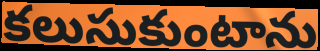
కలుసుకుంటాను